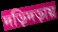
দড়িদড়ায়